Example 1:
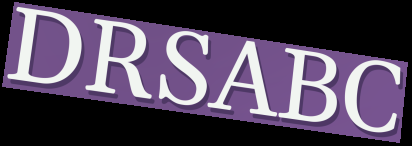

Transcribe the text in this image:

DRSABC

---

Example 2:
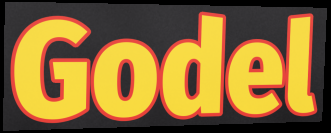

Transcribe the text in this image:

Godel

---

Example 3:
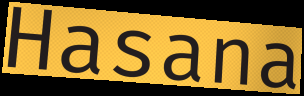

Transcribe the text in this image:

Hasana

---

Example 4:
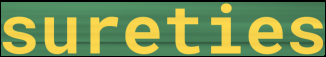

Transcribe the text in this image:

sureties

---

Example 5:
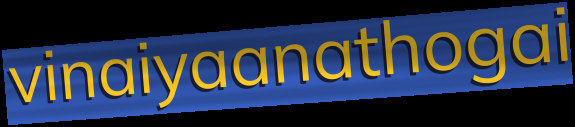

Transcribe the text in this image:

vinaiyaanathogai